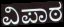
ವಿಪಾಠ